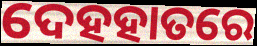
ଦେହହାତରେ